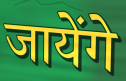
जायेंगे